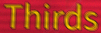
Thirds